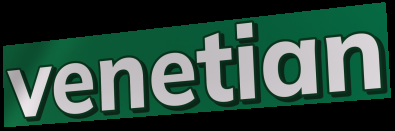
venetian